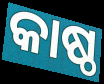
କାଷ୍ଠ